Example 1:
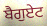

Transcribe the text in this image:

ਬੈਗੁਏਟ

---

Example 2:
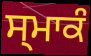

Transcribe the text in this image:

ਸ੍ਮਾਕੰ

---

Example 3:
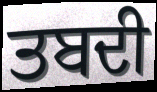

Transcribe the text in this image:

ਤਬਦੀ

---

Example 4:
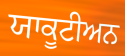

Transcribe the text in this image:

ਯਾਕੂਟੀਅਨ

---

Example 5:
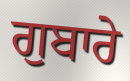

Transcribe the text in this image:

ਗੁਬਾਰੇ